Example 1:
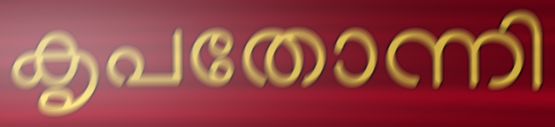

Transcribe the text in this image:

കൃപതോന്നി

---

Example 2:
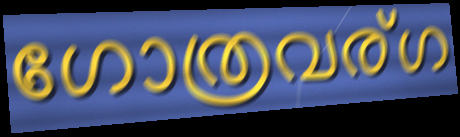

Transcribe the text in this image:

ഗോത്രവര്ഗ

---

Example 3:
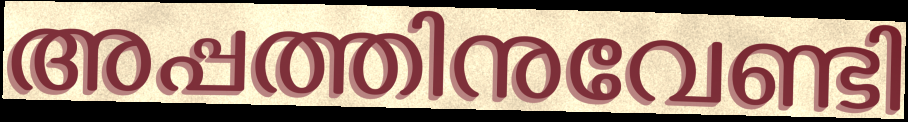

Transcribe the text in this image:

അപ്പത്തിനുവേണ്ടി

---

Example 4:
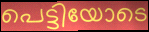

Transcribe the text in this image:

പെട്ടിയോടെ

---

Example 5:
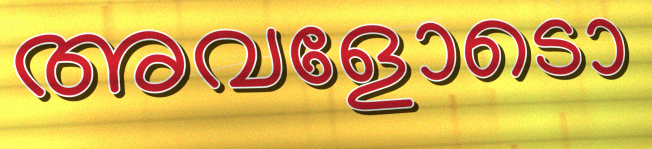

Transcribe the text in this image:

അവളോടൊ